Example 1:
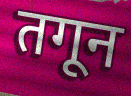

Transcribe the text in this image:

तगून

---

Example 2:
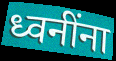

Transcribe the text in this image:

ध्वनींना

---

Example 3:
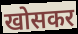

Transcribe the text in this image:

खोसकर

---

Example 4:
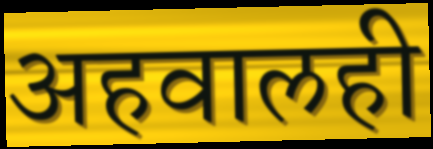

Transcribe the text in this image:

अहवालही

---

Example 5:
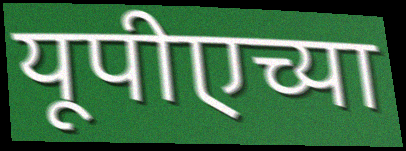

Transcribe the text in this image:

यूपीएच्या